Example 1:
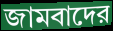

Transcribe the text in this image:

জামবাদের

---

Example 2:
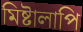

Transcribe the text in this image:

মিষ্টালাপি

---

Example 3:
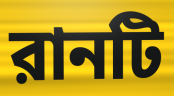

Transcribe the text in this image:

রানটি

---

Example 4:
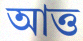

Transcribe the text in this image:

আত্ত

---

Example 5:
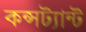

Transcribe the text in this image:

কন্সট্যান্ট